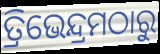
ତ୍ରିଭେନ୍ଦ୍ରମଠାରୁ